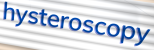
hysteroscopy